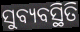
ସୁବ୍ୟବସ୍ଥିତି